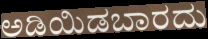
ಅಡಿಯಿಡಬಾರದು